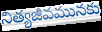
నిత్యజీవమునకు